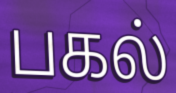
பகல்